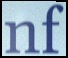
nf